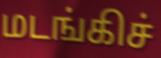
மடங்கிச்